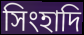
সিংহাদি